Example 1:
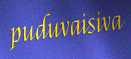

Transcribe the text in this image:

puduvaisiva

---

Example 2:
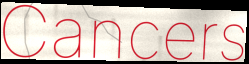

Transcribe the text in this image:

Cancers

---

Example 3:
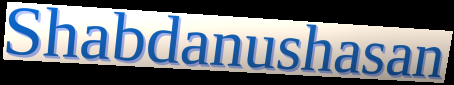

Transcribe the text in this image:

Shabdanushasan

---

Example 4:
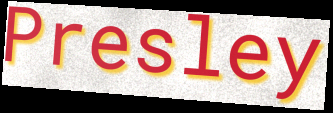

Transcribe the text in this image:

Presley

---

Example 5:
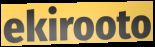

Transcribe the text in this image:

ekirooto